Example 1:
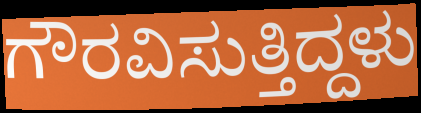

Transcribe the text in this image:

ಗೌರವಿಸುತ್ತಿದ್ದಳು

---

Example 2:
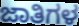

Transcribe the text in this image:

ಜಾತಿಗಳ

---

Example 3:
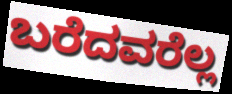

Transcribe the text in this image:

ಬರೆದವರೆಲ್ಲ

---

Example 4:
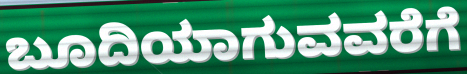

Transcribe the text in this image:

ಬೂದಿಯಾಗುವವರೆಗೆ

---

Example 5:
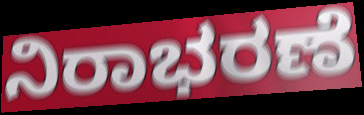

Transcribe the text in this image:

ನಿರಾಭರಣೆ